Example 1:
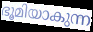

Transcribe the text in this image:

ഭൂമിയാകുന്ന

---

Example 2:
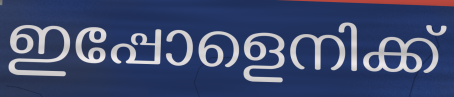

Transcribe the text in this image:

ഇപ്പോളെനിക്ക്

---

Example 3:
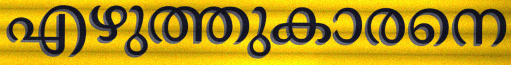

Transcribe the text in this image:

എഴുത്തുകാരനെ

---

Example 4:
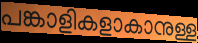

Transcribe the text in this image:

പങ്കാളികളാകാനുള്ള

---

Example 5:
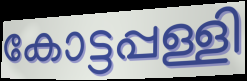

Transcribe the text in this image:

കോട്ടപ്പള്ളി